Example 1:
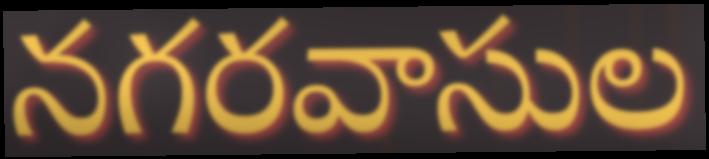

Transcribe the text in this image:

నగరవాసుల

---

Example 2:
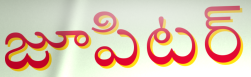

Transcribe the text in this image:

జూపిటర్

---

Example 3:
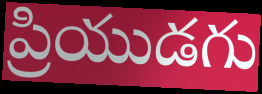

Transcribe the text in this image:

ప్రియుడగు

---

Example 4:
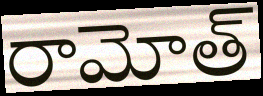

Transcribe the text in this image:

రామోత్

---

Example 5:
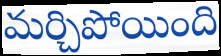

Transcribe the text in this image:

మర్చిపోయింది